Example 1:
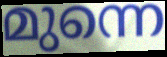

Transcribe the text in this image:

മുന്നെ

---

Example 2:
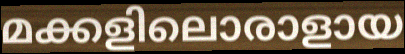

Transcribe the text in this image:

മക്കളിലൊരാളായ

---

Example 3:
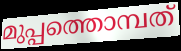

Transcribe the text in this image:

മുപ്പത്തൊമ്പത്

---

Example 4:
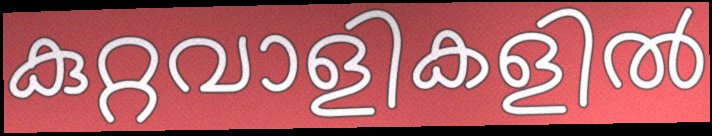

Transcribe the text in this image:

കുറ്റവാളികളിൽ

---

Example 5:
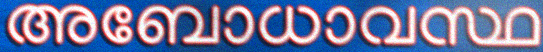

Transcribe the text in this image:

അബോധാവസ്ഥ